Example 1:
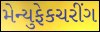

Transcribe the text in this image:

મેન્યુફેકચરીંગ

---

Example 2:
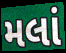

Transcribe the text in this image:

મલાં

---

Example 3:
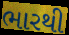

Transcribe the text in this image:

ભારથી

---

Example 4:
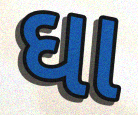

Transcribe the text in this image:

ઘા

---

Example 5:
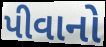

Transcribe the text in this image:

પીવાનો